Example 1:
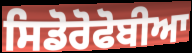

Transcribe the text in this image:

ਸਿਡੋਰੋਫੋਬੀਆ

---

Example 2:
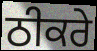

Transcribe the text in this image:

ਠੀਕਰੇ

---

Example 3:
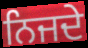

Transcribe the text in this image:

ਨਿਜਦੇ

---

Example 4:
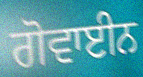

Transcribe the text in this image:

ਗੋਵਾਈਨ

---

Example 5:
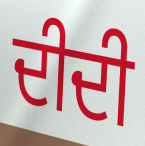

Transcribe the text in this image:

ਦੀਦੀ